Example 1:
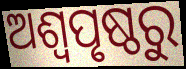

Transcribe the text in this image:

ଅଶ୍ଵପୃଷ୍ଠରୁ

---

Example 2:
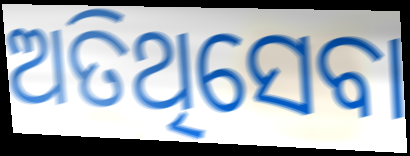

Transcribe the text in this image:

ଅତିଥିସେବା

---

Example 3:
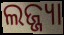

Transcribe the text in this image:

ଲଜ୍ଜ୍ୟା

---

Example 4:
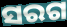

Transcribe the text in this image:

ସରଗ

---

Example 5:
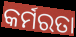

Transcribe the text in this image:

କର୍ମରତା